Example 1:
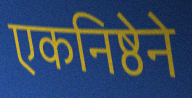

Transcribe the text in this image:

एकनिष्ठेने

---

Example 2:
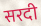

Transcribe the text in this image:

सरदी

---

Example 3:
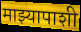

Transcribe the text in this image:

माझ्यापाशी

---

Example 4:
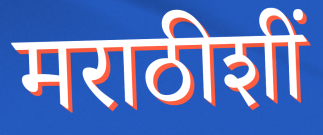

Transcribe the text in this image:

मराठीशीं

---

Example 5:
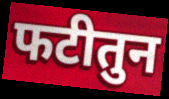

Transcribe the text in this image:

फटीतुन